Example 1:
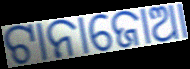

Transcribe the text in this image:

ଟାନାଜୋଆ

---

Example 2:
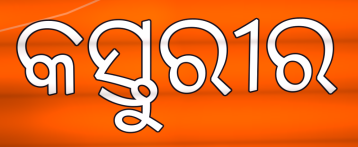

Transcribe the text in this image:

କସ୍ତୁରୀର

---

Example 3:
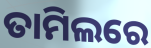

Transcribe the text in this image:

ତାମିଲରେ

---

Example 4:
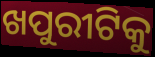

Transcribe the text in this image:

ଖପୁରୀଟିକୁ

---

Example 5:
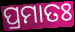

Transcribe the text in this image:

ପ୍ରମାତଃ